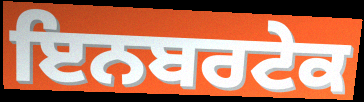
ਇਨਬਰਟੇਕ